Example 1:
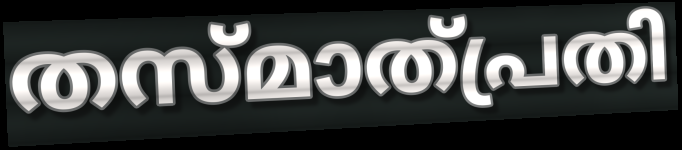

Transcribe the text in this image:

തസ്മാത്പ്രതി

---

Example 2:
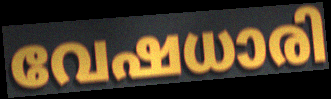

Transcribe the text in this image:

വേഷധാരി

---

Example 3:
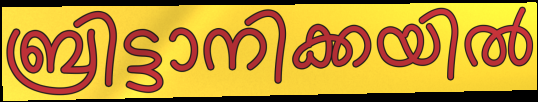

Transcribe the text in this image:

ബ്രിട്ടാനിക്കയിൽ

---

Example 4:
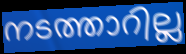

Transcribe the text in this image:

നടത്താറില്ല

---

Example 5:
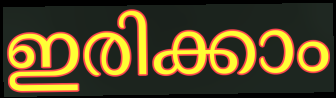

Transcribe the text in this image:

ഇരിക്കാം